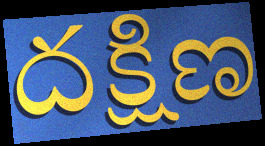
దక్షిణ